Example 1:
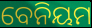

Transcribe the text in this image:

ବେନିୟମ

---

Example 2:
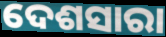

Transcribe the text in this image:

ଦେଶସାରା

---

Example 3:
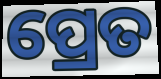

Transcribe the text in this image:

ପ୍ରେତ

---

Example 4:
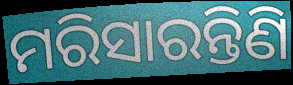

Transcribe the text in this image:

ମରିସାରନ୍ତିଣି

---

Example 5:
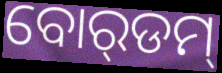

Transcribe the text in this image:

ବୋର୍‌ଡମ୍